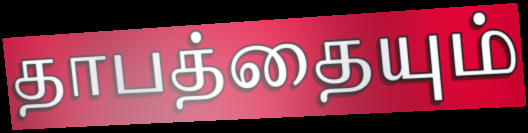
தாபத்தையும்